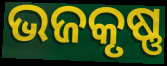
ଭଜକୃଷ୍ଣ